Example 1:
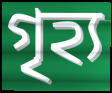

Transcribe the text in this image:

গৃহ্য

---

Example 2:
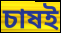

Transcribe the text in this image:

চাষই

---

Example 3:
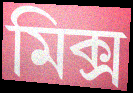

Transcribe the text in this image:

মিক্স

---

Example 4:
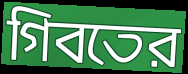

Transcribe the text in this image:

গিবতের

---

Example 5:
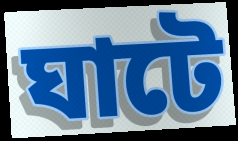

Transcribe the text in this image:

ঘাটে